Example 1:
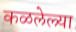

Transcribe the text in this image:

कळलेल्या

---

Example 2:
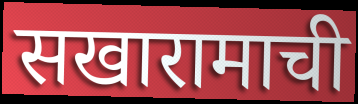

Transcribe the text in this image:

सखारामाची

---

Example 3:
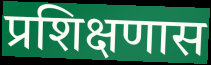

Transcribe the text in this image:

प्रशिक्षणास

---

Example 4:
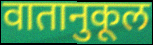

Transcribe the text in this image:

वातानुकूल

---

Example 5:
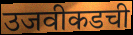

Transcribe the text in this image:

उजवीकडची